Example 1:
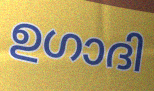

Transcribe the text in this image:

ഉഗാദി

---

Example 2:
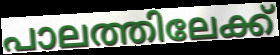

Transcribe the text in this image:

പാലത്തിലേക്ക്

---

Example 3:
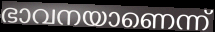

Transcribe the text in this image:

ഭാവനയാണെന്ന്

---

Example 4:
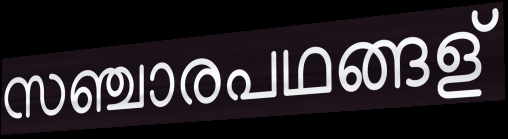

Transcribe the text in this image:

സഞ്ചാരപഥങ്ങള്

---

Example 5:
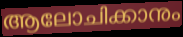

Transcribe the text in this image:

ആലോചിക്കാനും